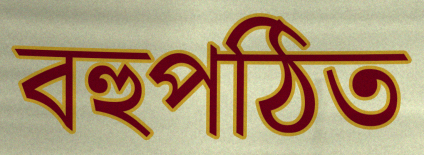
বহুপঠিত